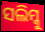
ସଲିମ୍କୁ